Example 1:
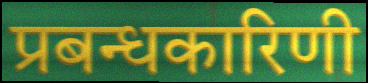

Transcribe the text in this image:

प्रबन्धकारिणी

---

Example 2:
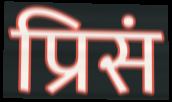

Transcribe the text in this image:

प्रिसं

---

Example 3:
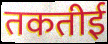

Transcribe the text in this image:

तकतीई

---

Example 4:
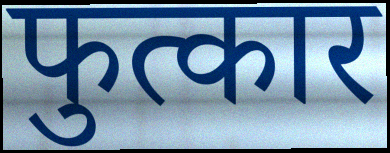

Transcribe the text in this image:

फुत्कार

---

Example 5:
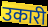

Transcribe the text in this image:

उकारी